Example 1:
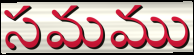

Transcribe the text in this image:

సమము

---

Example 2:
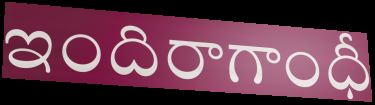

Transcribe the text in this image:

ఇందిరాగాంధీ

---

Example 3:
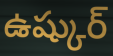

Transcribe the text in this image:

ఉష్కుర్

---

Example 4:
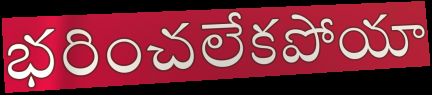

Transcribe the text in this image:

భరించలేకపోయా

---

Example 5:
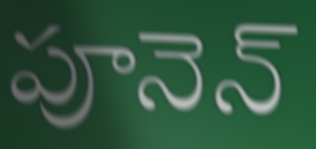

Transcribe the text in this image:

పూనెన్